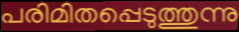
പരിമിതപ്പെടുത്തുന്നു